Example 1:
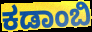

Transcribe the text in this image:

ಕಡಾಂಬಿ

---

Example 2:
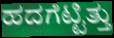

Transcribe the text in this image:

ಹದಗೆಟ್ಟಿತ್ತು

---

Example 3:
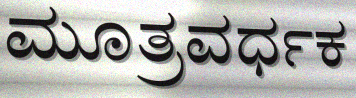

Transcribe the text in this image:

ಮೂತ್ರವರ್ಧಕ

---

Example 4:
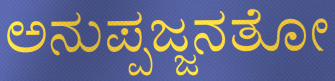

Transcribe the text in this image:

ಅನುಪ್ಪಜ್ಜನತೋ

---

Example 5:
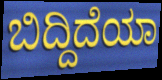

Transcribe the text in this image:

ಬಿದ್ದಿದೆಯಾ